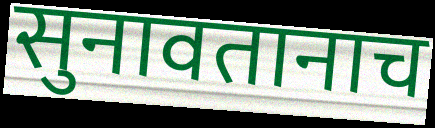
सुनावतानाच